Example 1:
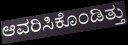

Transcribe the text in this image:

ಆವರಿಸಿಕೊಂಡಿತ್ತು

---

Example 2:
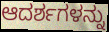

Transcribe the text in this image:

ಆದರ್ಶಗಳನ್ನು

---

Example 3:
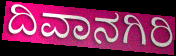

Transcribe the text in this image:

ದಿವಾನಗಿರಿ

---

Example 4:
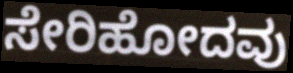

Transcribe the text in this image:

ಸೇರಿಹೋದವು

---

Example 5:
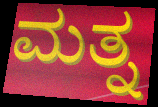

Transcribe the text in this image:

ಮತ್ನ